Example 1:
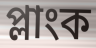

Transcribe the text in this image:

প্লাংক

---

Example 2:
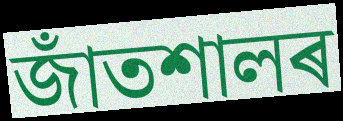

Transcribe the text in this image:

জাঁতশালৰ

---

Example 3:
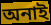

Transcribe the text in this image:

অনাই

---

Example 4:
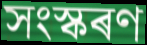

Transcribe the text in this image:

সংস্কৰণ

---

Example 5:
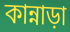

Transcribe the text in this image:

কান্নাড়া